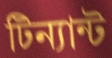
টিন্যান্ট